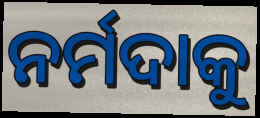
ନର୍ମଦାକୁ